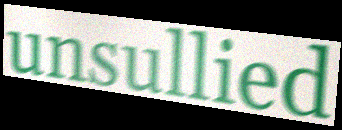
unsullied